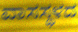
ವಾಸಸ್ಥಳದ